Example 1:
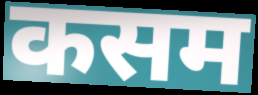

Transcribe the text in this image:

कसम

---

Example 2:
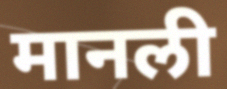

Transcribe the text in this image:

मानली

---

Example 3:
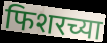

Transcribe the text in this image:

फिशरच्या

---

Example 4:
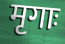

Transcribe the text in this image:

मृगाः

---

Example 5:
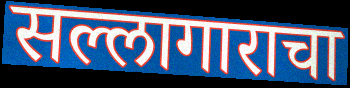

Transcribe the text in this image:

सल्लागाराचा